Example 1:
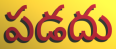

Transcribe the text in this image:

పడదు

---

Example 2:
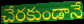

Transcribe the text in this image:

చేరకుండానే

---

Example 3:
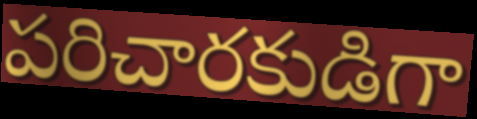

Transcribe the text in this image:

పరిచారకుడిగా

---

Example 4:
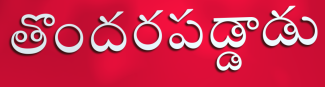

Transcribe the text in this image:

తొందరపడ్డాడు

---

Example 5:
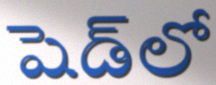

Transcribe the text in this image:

షెడ్‌లో